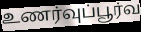
உணர்வுப்பூர்வ